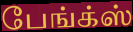
பேங்க்ஸ்